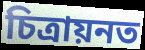
চিত্ৰায়নত